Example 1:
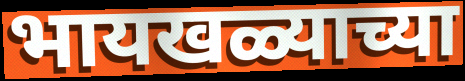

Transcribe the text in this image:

भायखळ्याच्या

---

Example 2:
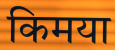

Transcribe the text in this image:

किमया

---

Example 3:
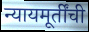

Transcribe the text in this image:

न्यायमूर्तींची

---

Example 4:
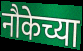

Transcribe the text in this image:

नौकेच्या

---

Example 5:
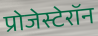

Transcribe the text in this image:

प्रोजेस्टेरॉन